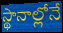
స్థానాల్లోనే